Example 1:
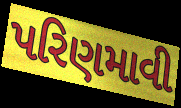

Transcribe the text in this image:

પરિણમાવી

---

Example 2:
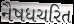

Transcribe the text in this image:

નૈષધચરિત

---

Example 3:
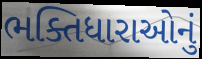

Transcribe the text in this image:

ભક્તિધારાઓનું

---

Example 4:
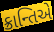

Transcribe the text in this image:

ક્રાન્તિએ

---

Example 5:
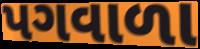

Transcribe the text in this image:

પગવાળા